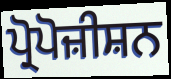
ਪ੍ਰੋਪੋਜ਼ੀਸ਼ਨ